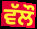
ਵੱਲੌ